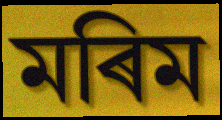
মৰিম